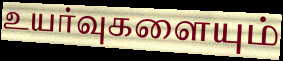
உயர்வுகளையும்